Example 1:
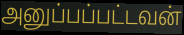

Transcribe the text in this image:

அனுப்பப்பட்டவன்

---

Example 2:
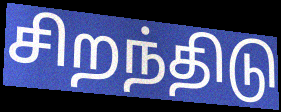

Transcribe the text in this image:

சிறந்திடு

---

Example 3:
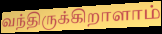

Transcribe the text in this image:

வந்திருக்கிறாளாம்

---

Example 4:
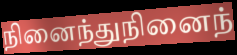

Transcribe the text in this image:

நினைந்துநினைந்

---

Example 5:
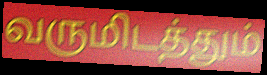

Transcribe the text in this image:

வருமிடத்தும்